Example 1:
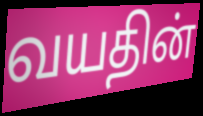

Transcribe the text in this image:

வயதின்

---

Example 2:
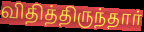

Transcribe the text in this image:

விதித்திருந்தார்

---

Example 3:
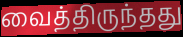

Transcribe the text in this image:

வைத்திருந்தது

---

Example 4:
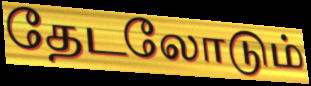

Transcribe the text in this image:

தேடலோடும்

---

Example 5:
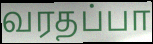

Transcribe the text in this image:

வரதப்பா